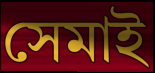
সেমাই